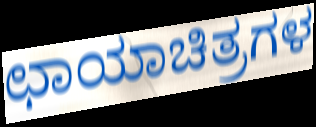
ಛಾಯಾಚಿತ್ರಗಳ